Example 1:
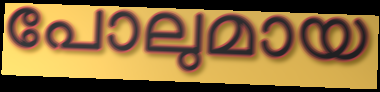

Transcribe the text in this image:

പോലുമായ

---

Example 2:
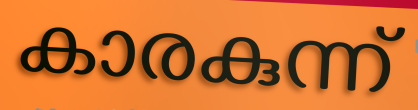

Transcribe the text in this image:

കാരകുന്ന്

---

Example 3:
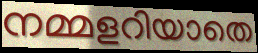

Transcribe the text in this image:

നമ്മളറിയാതെ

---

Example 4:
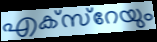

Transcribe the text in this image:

എക്സ്റേയും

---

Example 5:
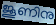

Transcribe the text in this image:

ജൂണിനു